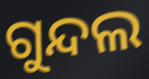
ଗୁନ୍ଦଲ